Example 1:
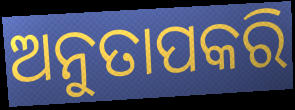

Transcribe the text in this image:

ଅନୁତାପକରି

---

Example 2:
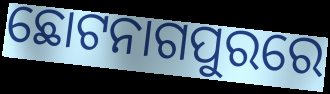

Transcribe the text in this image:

ଛୋଟନାଗପୁରରେ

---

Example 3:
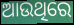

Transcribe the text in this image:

ଆଉଥିରେ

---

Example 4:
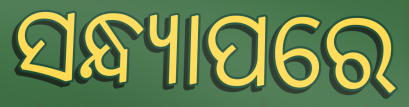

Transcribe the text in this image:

ସନ୍ଧ୍ୟାପରେ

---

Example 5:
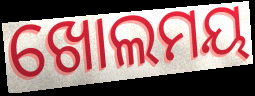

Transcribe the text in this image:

ଖୋଲମୟ